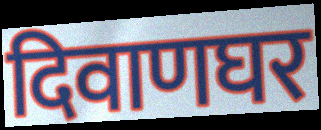
दिवाणघर